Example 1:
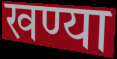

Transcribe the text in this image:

खण्या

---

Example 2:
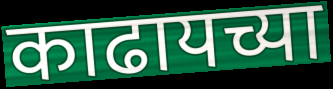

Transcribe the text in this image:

काढायच्या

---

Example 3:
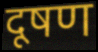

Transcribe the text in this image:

दूषण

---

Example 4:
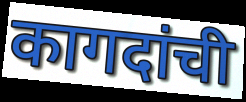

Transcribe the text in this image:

कागदांची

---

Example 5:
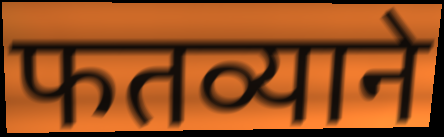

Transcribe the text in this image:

फतव्याने